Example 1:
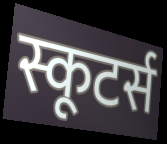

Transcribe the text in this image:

स्‍कूटर्स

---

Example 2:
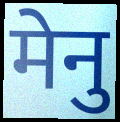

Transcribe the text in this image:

मेनु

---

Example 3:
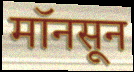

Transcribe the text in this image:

मॉनसून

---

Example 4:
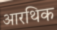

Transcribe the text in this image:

आरथिक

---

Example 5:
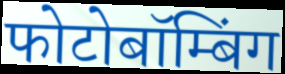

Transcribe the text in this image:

फोटोबॉम्बिंग